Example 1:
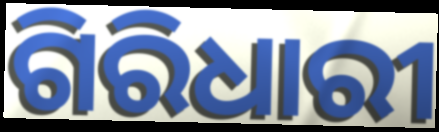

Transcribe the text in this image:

ଗିରିଧାରୀ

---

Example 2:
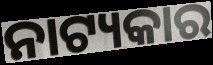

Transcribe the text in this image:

ନାଟ୍ୟକାର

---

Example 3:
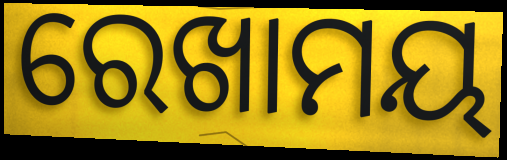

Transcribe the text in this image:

ରେଖାମୟ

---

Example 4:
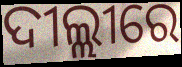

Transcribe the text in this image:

ଦୀଲ୍ଲୀରେ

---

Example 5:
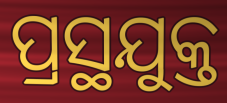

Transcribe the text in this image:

ପ୍ରସ୍ଥଯୁକ୍ତ